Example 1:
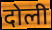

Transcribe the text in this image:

दोली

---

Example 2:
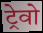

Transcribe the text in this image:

ट्रेवो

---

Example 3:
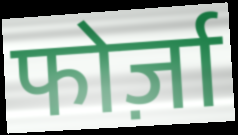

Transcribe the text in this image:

फोर्ज़ा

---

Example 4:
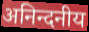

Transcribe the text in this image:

अनिन्दनीय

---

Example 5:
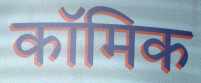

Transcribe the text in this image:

कॉमिक